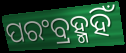
ପରଂବ୍ରହ୍ମହିଁ